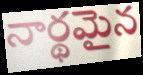
నార్థమైన